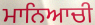
ਮਾਨਿਆਚੀ